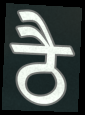
ठै